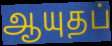
ஆயுதப்